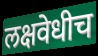
लक्षवेधीच